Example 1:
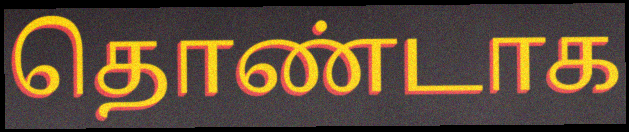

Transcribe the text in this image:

தொண்டாக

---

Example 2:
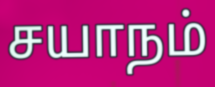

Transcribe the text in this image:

சயாநம்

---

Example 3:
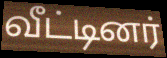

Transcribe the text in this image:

வீட்டினர்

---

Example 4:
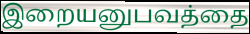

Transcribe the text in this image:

இறையனுபவத்தை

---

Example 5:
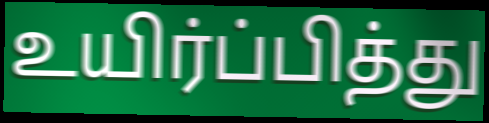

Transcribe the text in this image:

உயிர்ப்பித்து